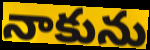
నాకును